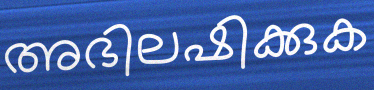
അഭിലഷിക്കുക